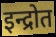
इन्द्रोत